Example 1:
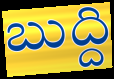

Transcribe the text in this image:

బుద్ది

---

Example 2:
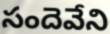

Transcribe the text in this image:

సందెవేని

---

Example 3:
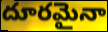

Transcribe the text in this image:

దూరమైనా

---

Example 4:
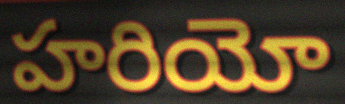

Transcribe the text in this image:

హరియో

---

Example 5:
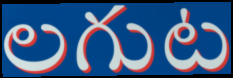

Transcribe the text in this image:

లగుట